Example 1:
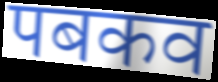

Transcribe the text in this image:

पबकव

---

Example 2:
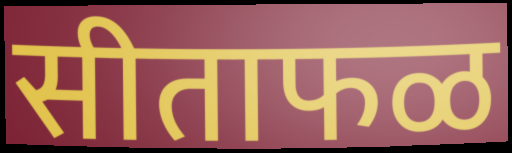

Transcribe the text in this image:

सीताफळ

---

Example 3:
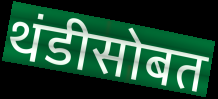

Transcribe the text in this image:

थंडीसोबत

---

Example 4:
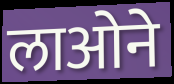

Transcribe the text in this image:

लाओने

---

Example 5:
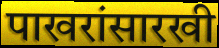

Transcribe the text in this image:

पाखरांसारखी